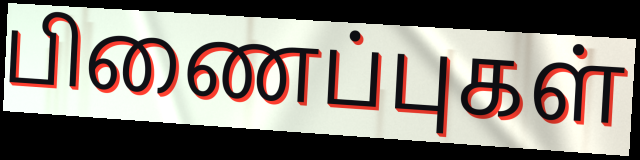
பிணைப்புகள்